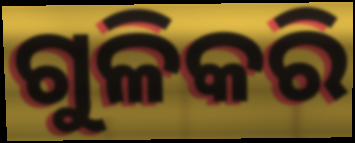
ଗୁଳିକରି